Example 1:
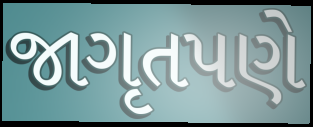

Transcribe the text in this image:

જાગૃતપણે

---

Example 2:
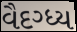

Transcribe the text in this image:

વૈદગ્ધ્ય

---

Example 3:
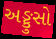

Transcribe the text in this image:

અઙ્કુસો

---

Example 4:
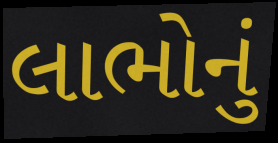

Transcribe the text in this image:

લાભોનું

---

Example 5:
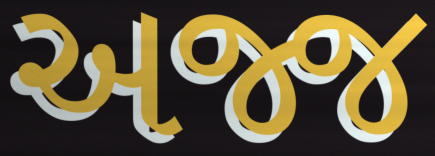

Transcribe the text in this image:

અજ્જ